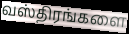
வஸ்திரங்களை